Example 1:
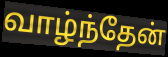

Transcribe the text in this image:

வாழ்ந்தேன்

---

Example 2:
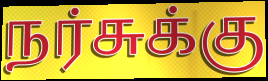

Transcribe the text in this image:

நர்சுக்கு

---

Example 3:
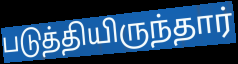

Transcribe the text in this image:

படுத்தியிருந்தார்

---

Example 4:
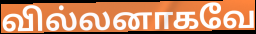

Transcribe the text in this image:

வில்லனாகவே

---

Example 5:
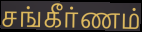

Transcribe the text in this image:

சங்கீர்ணம்